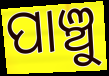
ପାଞ୍ଚୁ